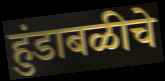
हुंडाबळीचे